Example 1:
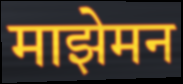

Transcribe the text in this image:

माझेमन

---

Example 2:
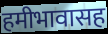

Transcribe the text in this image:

हमीभावासह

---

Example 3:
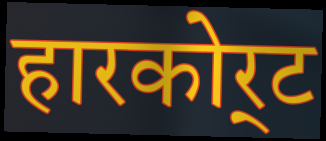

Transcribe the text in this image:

हारकोर्ट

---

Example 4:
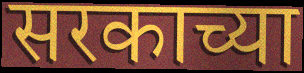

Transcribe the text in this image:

सरकाच्या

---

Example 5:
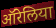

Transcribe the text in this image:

ऑरेलिया